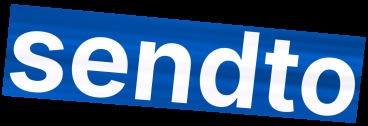
sendto